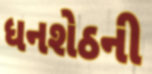
ધનશેઠની